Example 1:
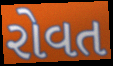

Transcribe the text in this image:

રોવત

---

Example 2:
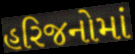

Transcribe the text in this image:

હરિજનોમાં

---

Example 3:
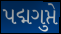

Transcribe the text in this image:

પદ્મગુપ્તે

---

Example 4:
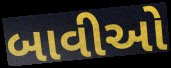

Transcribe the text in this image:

બાવીઓ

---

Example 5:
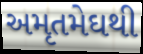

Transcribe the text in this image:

અમૃતમેઘથી